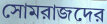
সোমরাজদের